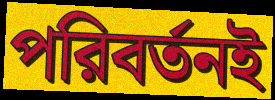
পরিবর্তনই